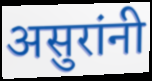
असुरांनी